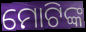
ମୋଟିଙ୍କ